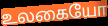
உலகையோ